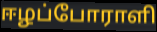
ஈழப்போராளி